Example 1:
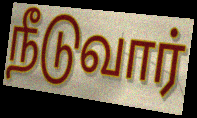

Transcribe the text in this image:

நீடுவார்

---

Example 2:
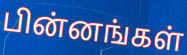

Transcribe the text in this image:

பின்னங்கள்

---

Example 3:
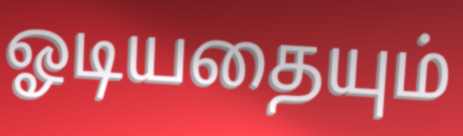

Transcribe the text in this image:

ஓடியதையும்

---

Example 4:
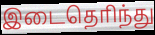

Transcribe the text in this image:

இடைதெரிந்து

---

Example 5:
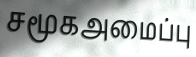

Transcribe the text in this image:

சமூகஅமைப்பு